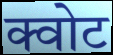
क्वोट